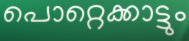
പൊറ്റെക്കാട്ടും